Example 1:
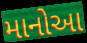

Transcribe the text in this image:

માનોઆ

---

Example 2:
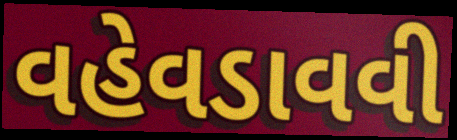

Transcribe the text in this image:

વહેવડાવવી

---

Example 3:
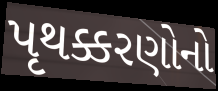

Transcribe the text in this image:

પૃથક્કરણોનો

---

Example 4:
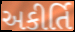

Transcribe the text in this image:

અકીર્તિ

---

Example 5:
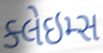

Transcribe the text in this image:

ક્લેઇમ્સ